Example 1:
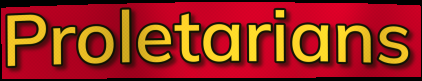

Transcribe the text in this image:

Proletarians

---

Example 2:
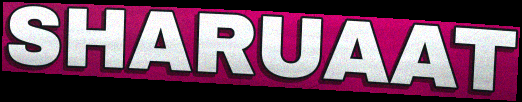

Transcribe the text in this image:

SHARUAAT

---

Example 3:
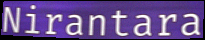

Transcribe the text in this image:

Nirantara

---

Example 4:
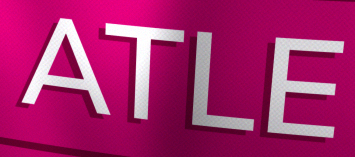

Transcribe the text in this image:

ATLE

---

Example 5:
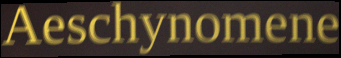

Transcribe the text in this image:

Aeschynomene